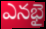
ఎనభై